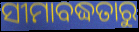
ସୀମାବଦ୍ଧତାରୁ